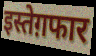
इस्तेग़फार